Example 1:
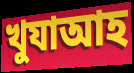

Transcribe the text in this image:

খুযাআহ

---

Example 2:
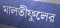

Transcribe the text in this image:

মালতীফুলের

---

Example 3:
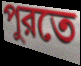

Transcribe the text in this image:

পুরতে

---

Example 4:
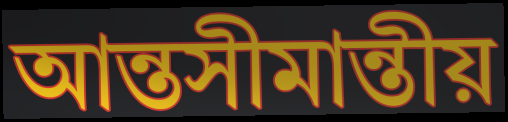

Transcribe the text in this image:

আন্তসীমান্তীয়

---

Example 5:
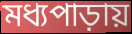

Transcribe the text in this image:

মধ্যপাড়ায়